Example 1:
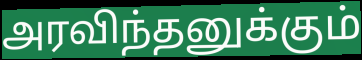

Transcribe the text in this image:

அரவிந்தனுக்கும்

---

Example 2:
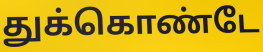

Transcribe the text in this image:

துக்கொண்டே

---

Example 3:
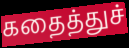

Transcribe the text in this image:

கதைத்துச்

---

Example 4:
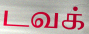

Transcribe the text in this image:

டவக்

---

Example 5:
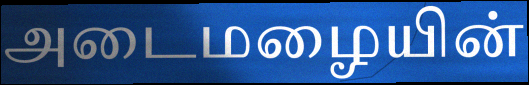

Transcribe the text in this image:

அடைமழையின்